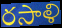
రసాళి